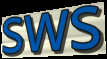
sws